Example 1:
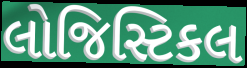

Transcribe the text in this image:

લોજિસ્ટિકલ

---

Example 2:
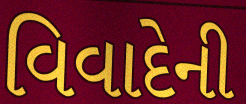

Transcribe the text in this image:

વિવાદેની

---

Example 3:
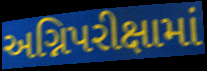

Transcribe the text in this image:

અગ્નિપરીક્ષામાં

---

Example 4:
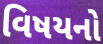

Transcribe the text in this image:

વિષયનો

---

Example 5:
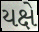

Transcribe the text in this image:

યક્ષે